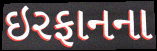
ઇરફાનના